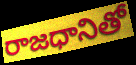
రాజధానితో